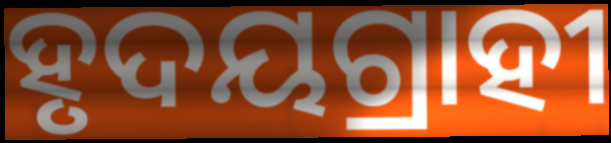
ହୃଦୟଗ୍ରାହୀ